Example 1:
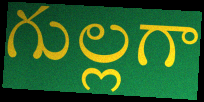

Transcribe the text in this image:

గుల్లగా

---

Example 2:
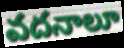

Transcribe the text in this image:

వదనాలూ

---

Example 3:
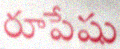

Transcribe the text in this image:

రూపేషు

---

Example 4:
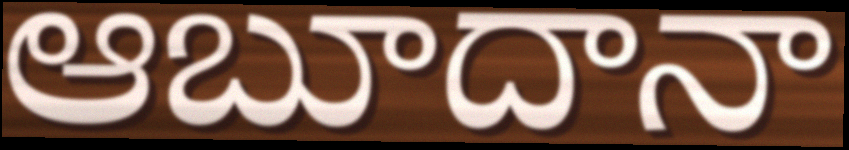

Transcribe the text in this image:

ఆబూదానా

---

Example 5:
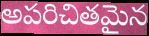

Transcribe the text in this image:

అపరిచితమైన